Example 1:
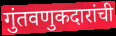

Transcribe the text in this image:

गुंतवणुकदारांची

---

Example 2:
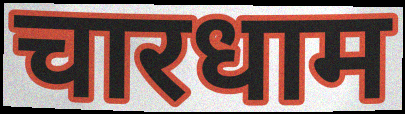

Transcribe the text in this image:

चारधाम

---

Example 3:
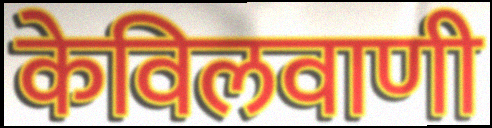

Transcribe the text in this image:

केविलवाणी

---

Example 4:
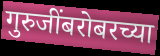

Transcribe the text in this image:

गुरुजींबरोबरच्या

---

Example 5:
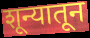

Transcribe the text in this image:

शून्यातून